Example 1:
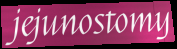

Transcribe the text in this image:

jejunostomy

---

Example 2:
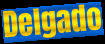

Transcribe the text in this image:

Delgado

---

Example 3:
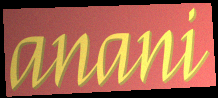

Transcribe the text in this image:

anani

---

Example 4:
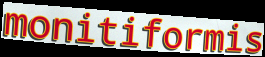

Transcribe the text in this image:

monitiformis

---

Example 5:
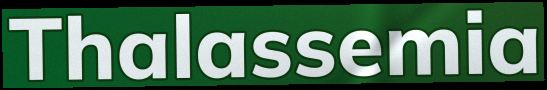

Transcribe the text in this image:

Thalassemia